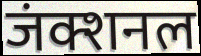
जंक्शनल